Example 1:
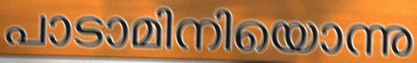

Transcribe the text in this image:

പാടാമിനിയൊന്നു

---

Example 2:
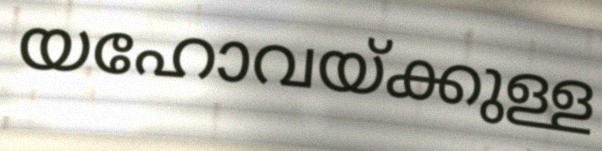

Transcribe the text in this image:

യഹോവയ്ക്കുള്ള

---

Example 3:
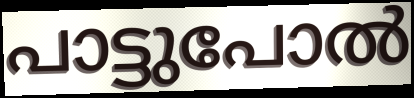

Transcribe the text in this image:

പാട്ടുപോൽ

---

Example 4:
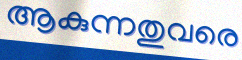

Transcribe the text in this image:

ആകുന്നതുവരെ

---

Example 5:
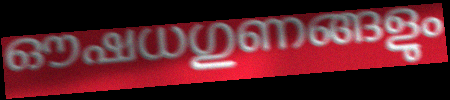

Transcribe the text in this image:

ഔഷധഗുണങ്ങളും